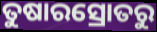
ତୁଷାରସ୍ରୋତରୁ